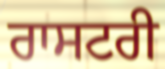
ਰਾਸਟਰੀ